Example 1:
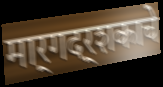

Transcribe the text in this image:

मार्गदर्शकाचे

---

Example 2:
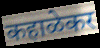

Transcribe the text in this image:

कहाळेकर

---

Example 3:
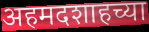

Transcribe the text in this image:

अहमदशाहच्या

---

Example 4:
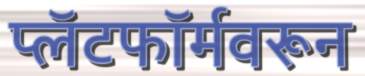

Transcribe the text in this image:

प्लॅटफॉर्मवरून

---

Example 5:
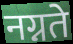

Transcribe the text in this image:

नग्नते